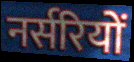
नर्सरियों